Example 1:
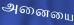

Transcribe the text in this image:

அனையை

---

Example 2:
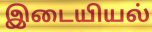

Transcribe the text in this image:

இடையியல்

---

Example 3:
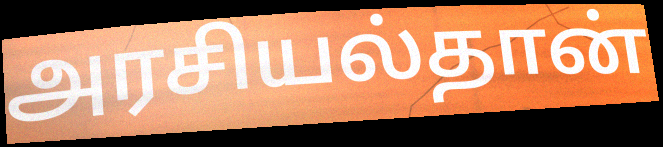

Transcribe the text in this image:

அரசியல்தான்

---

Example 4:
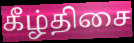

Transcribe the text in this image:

கீழ்திசை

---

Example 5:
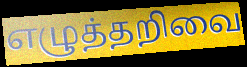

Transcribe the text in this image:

எழுத்தறிவை